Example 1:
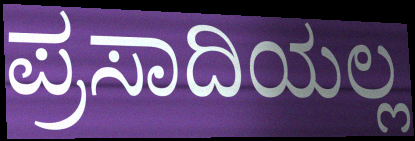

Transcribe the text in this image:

ಪ್ರಸಾದಿಯಲ್ಲ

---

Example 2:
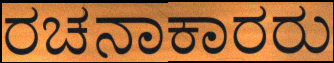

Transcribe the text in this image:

ರಚನಾಕಾರರು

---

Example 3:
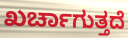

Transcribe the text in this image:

ಖರ್ಚಾಗುತ್ತದೆ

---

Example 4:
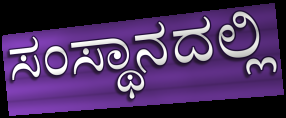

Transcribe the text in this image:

ಸಂಸ್ಥಾನದಲ್ಲಿ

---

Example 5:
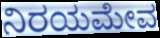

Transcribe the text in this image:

ನಿರಯಮೇವ